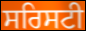
ਸਰਿਸਟੀ